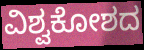
ವಿಶ್ವಕೋಶದ